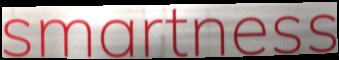
smartness